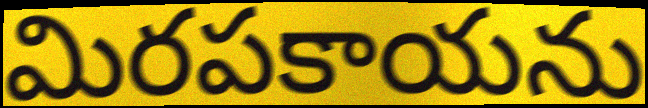
మిరపకాయను